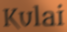
Kulai